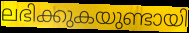
ലഭിക്കുകയുണ്ടായി